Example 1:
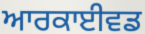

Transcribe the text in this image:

ਆਰਕਾਈਵਡ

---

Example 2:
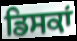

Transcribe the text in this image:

ਡਿਸਕਾਂ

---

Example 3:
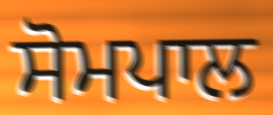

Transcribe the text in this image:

ਸੋਮਪਾਲ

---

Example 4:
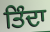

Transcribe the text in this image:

ਤਿੰਦਾ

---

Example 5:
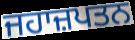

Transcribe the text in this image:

ਜਹਾਜ਼ਪਤਨ